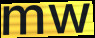
mw